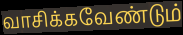
வாசிக்கவேண்டும்